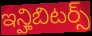
ఇన్హిబిటర్స్